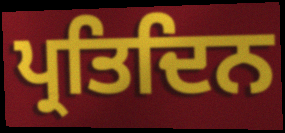
ਪ੍ਰਤਿਦਿਨ